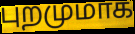
புறமுமாக